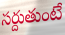
సర్దుతుంటే